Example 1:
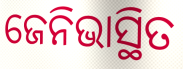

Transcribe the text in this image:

ଜେନିଭାସ୍ଥିତ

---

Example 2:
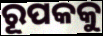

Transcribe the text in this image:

ରୂପକକୁ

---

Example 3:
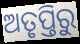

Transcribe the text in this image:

ଅତୃପ୍ତିରୁ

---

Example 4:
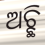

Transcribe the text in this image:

ଅଚ୍ଛି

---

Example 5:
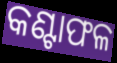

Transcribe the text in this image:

କଣ୍ଟାଫଳ